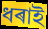
ধৰাই